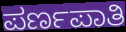
ಪರ್ಣಪಾತಿ